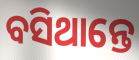
ବସିଥାନ୍ତେ